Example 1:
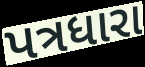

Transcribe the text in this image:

પત્રધારા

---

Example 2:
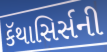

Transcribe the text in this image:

કૅથાસિર્સની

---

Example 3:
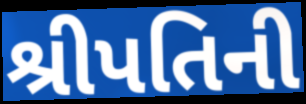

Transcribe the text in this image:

શ્રીપતિની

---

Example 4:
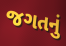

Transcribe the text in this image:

જગતનું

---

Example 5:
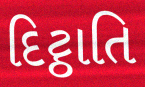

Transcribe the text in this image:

દિટ્ઠાતિ